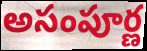
అసంపూర్ణ